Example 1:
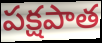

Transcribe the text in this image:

పక్షపాత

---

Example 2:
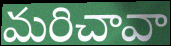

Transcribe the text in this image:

మరిచావా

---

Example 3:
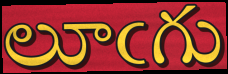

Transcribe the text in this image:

లూఁగు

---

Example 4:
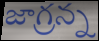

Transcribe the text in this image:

జాగ్రన్న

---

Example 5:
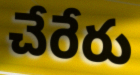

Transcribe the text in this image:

చేరేరు